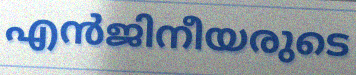
എൻജിനീയരുടെ